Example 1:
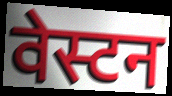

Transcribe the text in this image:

वेस्टन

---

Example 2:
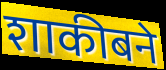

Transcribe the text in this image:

शाकीबने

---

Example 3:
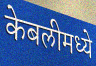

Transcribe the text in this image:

केबलीमध्ये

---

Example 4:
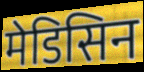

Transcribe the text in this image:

मेडिसिन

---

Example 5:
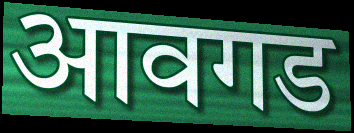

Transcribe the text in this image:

आवगड